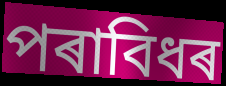
পৰাবিধৰ